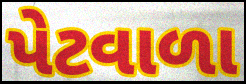
પેટવાળા